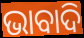
ଭାବାଦି